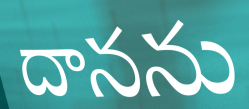
దానను